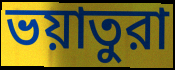
ভয়াতুরা